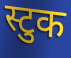
स्टुक